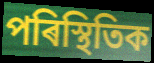
পৰিস্থিতিক